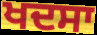
ਖਦਸਾ